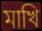
মাখি